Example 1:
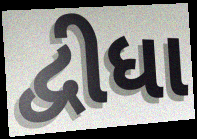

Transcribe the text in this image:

દ્વીધા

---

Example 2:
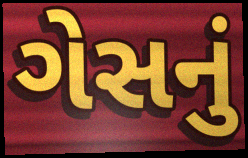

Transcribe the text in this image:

ગેસનું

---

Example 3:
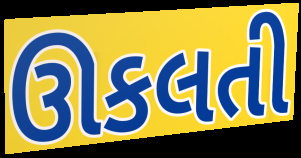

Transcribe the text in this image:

ઊકલતી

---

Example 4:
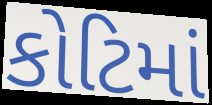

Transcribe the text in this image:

કોટિમાં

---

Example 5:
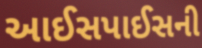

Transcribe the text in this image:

આઈસપાઈસની